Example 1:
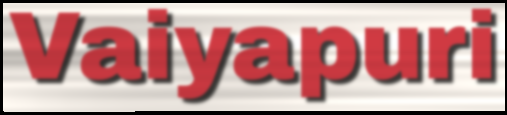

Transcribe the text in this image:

Vaiyapuri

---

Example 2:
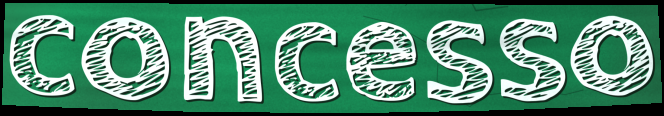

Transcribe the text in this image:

concesso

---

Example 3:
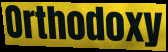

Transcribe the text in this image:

Orthodoxy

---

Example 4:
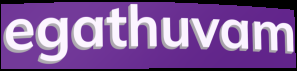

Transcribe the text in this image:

egathuvam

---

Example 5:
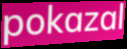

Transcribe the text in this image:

pokazal